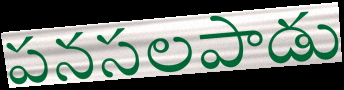
పనసలపాడు